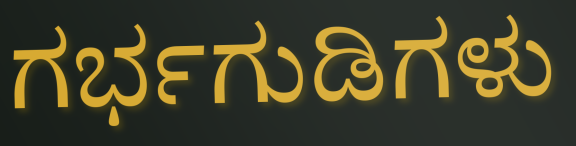
ಗರ್ಭಗುಡಿಗಳು